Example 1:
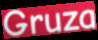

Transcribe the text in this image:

Gruza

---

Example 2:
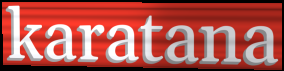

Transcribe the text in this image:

karatana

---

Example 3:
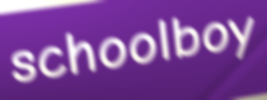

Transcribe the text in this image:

schoolboy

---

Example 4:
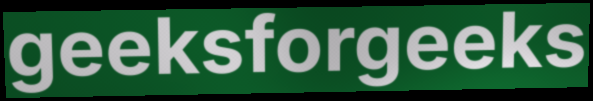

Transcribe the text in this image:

geeksforgeeks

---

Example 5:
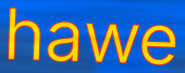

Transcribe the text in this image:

hawe